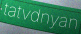
tatvdnyan